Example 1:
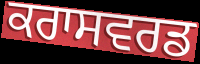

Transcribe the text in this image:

ਕਰਾਸਵਰਡ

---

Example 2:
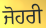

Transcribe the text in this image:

ਜੋਹਰੀ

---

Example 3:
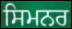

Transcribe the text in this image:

ਸਿਮਨਰ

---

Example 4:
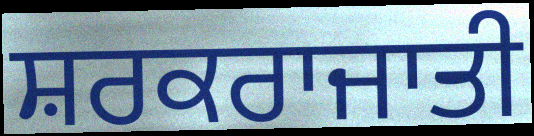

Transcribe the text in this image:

ਸ਼ਰਕਰਾਜਾਤੀ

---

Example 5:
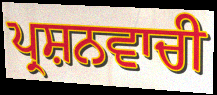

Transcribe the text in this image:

ਪ੍ਰਸ਼ਨਵਾਚੀ